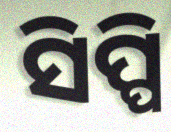
ସିପ୍ପି